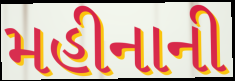
મહીનાની